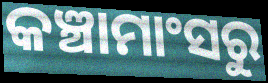
କଞ୍ଚାମାଂସରୁ